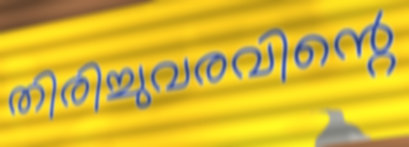
തിരിച്ചുവരവിന്റെ